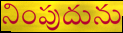
నింపుదును